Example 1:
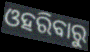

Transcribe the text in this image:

ଓହରିବାରୁ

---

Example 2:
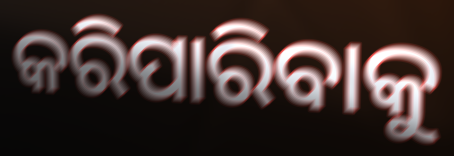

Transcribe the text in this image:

କରିପାରିବାକୁ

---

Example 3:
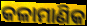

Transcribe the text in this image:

କଳାମାଣିକ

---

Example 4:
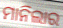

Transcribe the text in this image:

ମାନିଲାର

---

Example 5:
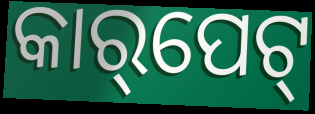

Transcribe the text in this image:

କାର୍‌ପେଟ୍